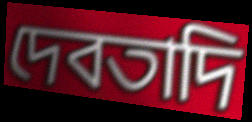
দেবতাদি